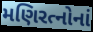
મણિરત્નોનાં